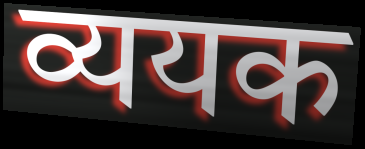
व्ययक